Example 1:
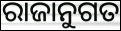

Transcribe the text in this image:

ରାଜାନୁଗତ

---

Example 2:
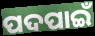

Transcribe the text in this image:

ପଦପାଇଁ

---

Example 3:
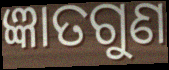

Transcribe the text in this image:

ଜ୍ଞାତଗୁଣ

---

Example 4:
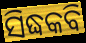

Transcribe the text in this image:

ସିଦ୍ଧକବି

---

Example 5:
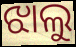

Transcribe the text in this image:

ଝାଲୁ